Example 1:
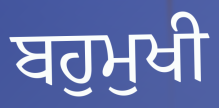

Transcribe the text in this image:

ਬਹੁਮੁਖੀ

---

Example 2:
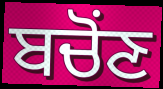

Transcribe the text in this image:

ਬਚੋਂਣ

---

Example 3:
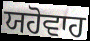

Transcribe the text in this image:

ਯਹੋਵਾਹ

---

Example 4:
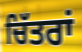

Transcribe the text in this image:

ਚਿੱਤਰਾਂ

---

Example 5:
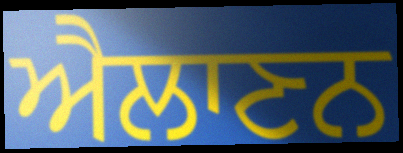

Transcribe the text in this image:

ਐਲਾਣਨ